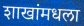
शाखांमधला